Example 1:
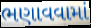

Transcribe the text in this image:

ભણાવવામાં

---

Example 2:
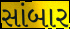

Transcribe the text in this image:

સાંબાર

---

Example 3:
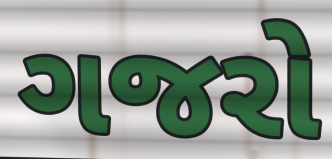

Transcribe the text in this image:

ગજરો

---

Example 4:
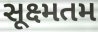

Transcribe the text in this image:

સૂક્ષ્મતમ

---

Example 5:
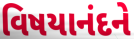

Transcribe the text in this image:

વિષયાનંદને